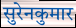
सुरेनकुमार